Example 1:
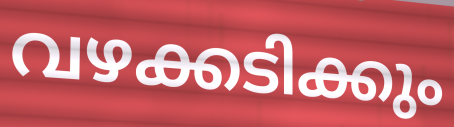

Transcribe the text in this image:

വഴക്കടിക്കും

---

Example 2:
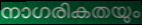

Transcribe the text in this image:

നാഗരികതയും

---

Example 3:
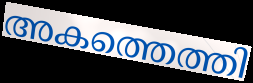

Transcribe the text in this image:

അകത്തെത്തി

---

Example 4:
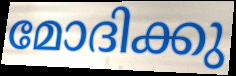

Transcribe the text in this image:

മോദിക്കു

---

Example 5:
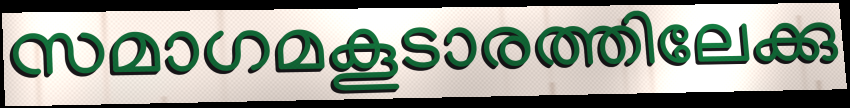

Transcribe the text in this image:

സമാഗമകൂടാരത്തിലേക്കു